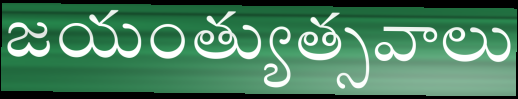
జయంత్యుత్సవాలు